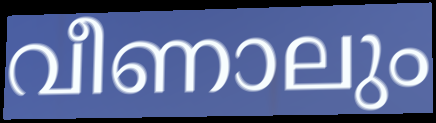
വീണാലും